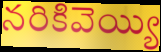
నరికివెయ్యి